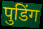
पुडिंग